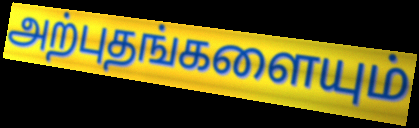
அற்புதங்களையும்